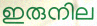
ഇരുനില